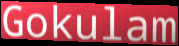
Gokulam